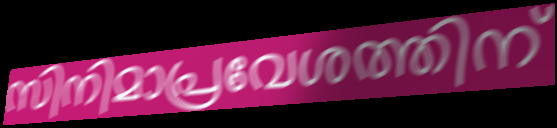
സിനിമാപ്രവേശത്തിന്